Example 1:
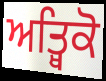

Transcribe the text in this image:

ਅਤ੍ਥਿਕੋ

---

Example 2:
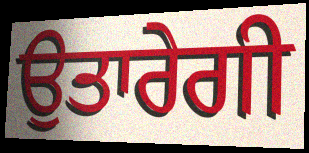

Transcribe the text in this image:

ਉਤਾਰੇਗੀ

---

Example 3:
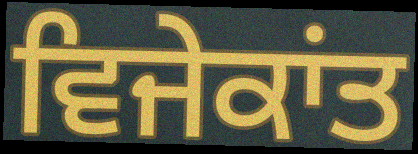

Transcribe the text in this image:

ਵਿਜੇਕਾਂਤ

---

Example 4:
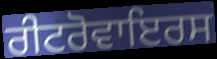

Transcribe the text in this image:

ਰੀਟਰੋਵਾਇਰਸ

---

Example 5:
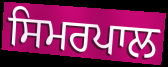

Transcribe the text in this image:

ਸਿਮਰਪਾਲ